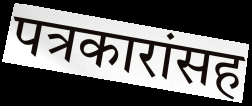
पत्रकारांसह